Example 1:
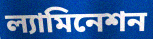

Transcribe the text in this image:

ল্যামিনেশন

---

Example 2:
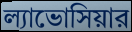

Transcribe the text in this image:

ল্যাভোসিয়ার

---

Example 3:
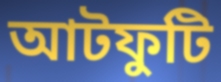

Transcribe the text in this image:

আটফুটি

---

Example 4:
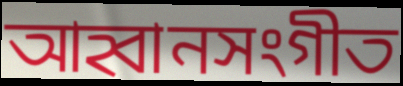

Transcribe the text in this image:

আহ্বানসংগীত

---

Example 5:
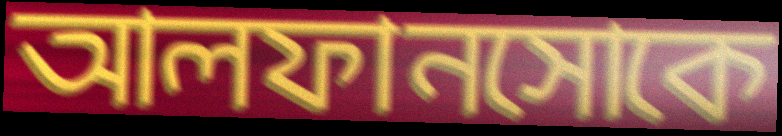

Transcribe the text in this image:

আলফানসোকে